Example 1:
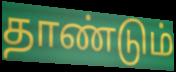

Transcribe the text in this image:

தாண்டும்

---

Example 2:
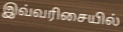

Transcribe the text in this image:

இவ்வரிசையில்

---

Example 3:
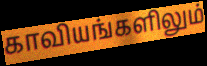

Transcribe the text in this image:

காவியங்களிலும்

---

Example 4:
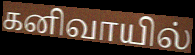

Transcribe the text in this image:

கனிவாயில்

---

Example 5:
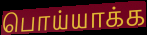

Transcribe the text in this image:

பொய்யாக்க